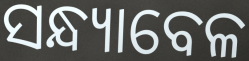
ସନ୍ଧ୍ୟାବେଳ